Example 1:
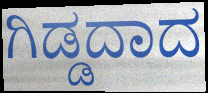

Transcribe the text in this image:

ಗಿಡ್ಡದಾದ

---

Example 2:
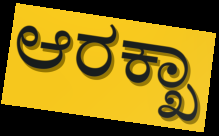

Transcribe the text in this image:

ಆರಕ್ಖಾ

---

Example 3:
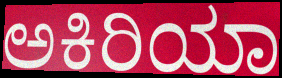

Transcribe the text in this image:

ಅಕಿರಿಯಾ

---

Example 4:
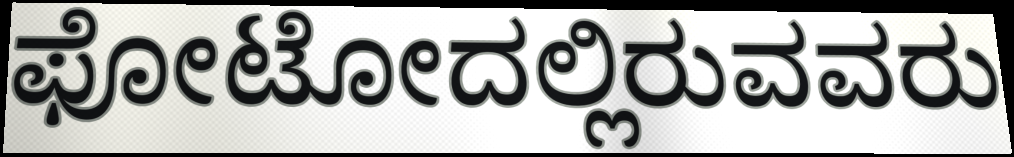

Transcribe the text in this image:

ಫೋಟೋದಲ್ಲಿರುವವರು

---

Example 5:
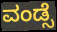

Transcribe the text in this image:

ವಂಡ್ಸೆ